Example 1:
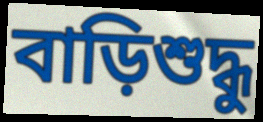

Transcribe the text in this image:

বাড়িশুদ্ধু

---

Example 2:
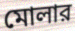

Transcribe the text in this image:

মোলার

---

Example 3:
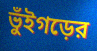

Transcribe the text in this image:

ভুঁইগড়ের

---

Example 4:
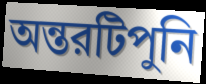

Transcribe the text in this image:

অন্তরটিপুনি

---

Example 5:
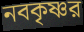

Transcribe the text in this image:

নবকৃষ্ণর